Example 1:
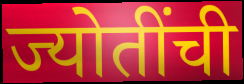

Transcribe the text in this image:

ज्योतींची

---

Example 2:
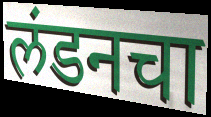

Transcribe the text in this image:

लंडनचा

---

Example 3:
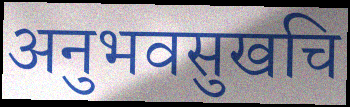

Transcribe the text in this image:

अनुभवसुखचि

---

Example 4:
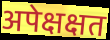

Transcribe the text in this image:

अपेक्षक्षत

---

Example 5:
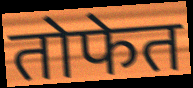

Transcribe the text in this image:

तोफेत